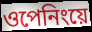
ওপেনিংয়ে